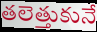
తలెత్తుకునే